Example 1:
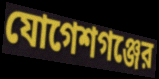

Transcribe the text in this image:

যোগেশগঞ্জের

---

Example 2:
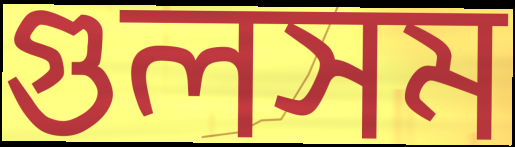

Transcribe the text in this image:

গুলসম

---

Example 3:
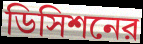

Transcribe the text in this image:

ডিসিশনের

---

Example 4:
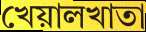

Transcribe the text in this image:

খেয়ালখাতা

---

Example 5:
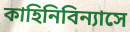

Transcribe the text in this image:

কাহিনিবিন্যাসে